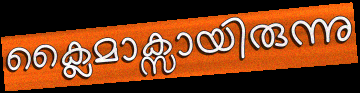
ക്ലൈമാക്സായിരുന്നു